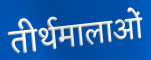
तीर्थमालाओं